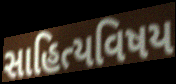
સાહિત્યવિષય